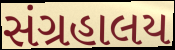
સંગ્રહાલય